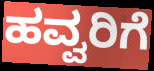
ಹವ್ವರಿಗೆ